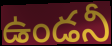
ఉండనీ